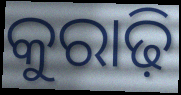
କୁରାଢ଼ି